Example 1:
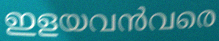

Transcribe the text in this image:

ഇളയവൻവരെ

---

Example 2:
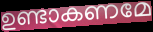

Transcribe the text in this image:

ഉണ്ടാകണമേ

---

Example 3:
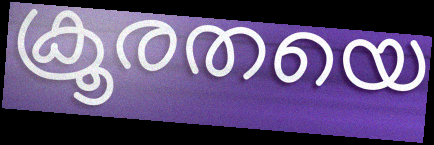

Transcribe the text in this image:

ക്രൂരതയെ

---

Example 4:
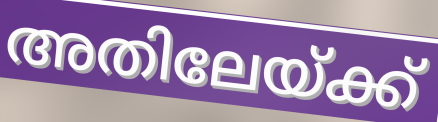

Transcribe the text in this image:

അതിലേയ്ക്ക്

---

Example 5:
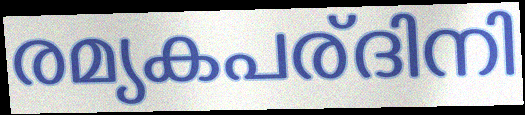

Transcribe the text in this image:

രമ്യകപര്ദിനി